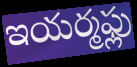
ఇయర్మఫ్లు